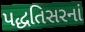
પદ્ધતિસરનાં